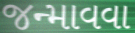
જન્માવવા